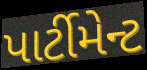
પાર્ટીમેન્ટ